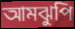
আমঝুপি